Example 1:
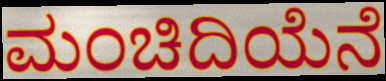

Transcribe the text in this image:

ಮಂಚಿದಿಯೆನೆ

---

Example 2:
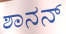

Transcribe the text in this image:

ಶಾನನ್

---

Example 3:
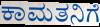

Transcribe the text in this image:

ಕಾಮತನಿಗೆ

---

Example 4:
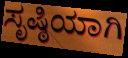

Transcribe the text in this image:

ಸೃಷ್ಠಿಯಾಗಿ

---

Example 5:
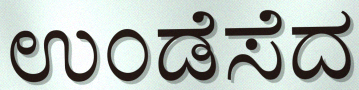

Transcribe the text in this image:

ಉಂಡೆಸೆದ